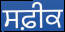
ਸਫ਼ੀਕ